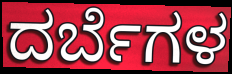
ದರ್ಬೆಗಳ